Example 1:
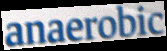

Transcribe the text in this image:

anaerobic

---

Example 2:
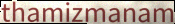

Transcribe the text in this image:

thamizmanam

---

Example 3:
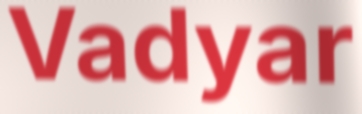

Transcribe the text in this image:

Vadyar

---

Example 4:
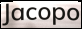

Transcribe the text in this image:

Jacopo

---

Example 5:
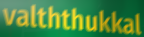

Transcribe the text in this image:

valththukkal